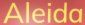
Aleida